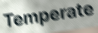
Temperate